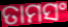
ତାମସଂ